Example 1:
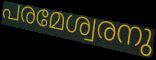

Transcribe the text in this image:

പരമേശ്വരനു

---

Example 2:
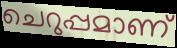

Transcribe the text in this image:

ചെറുപ്പമാണ്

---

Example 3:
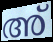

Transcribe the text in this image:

അ്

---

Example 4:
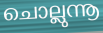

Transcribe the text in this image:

ചൊല്ലുന്നൂ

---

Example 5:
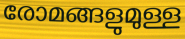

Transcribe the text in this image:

രോമങ്ങളുമുള്ള